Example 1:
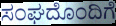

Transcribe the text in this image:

ಸಂಘದೊಂದಿಗೆ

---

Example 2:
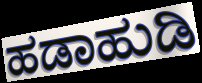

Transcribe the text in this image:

ಹಡಾಹುಡಿ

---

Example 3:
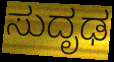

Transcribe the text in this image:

ಸುದೃಢ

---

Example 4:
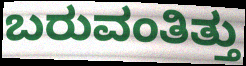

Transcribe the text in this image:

ಬರುವಂತಿತ್ತು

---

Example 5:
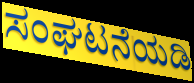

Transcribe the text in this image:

ಸಂಘಟನೆಯಡಿ